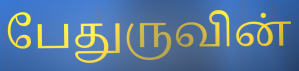
பேதுருவின்